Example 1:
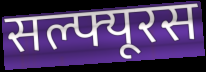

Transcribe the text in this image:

सल्फ्यूरस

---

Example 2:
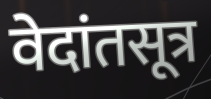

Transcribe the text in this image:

वेदांतसूत्र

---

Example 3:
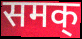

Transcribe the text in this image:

समक्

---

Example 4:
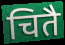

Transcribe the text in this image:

चितै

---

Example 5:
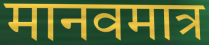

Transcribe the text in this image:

मानवमात्र